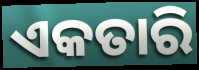
ଏକତାରି